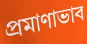
প্রমাণাভাব